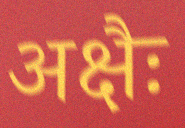
अक्षैः